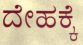
ದೇಹಕ್ಕೆ